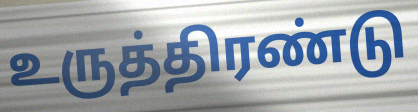
உருத்திரண்டு